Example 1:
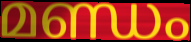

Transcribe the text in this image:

മണ്ഡം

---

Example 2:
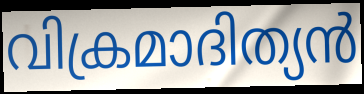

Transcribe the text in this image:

വിക്രമാദിത്യൻ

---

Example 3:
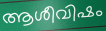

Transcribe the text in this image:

ആശീവിഷം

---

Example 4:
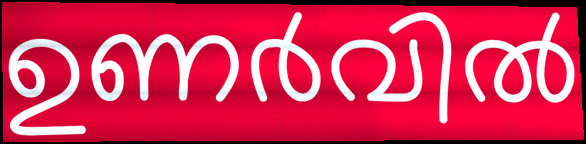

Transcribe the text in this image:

ഉണർവിൽ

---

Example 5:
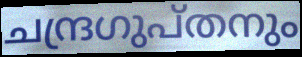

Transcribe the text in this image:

ചന്ദ്രഗുപ്തനും